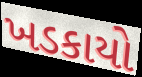
ખડકાયો